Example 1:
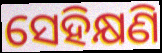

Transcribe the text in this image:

ସେହିକ୍ଷଣି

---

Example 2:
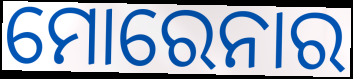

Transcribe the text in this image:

ମୋରେନାର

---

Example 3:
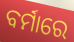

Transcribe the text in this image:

ବର୍ମାରେ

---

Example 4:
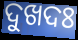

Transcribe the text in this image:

ଦୁଖଦଃ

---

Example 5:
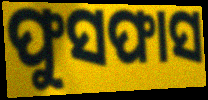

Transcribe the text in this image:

ଫୁସଫାସ